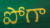
పోగా